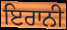
ਇਰਾਨੀ